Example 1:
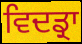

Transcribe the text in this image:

ਵਿਦਡ੍ਰਾ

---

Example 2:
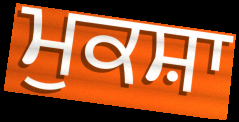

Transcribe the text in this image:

ਮੁਕਸ਼ਾ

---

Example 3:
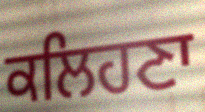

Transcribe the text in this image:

ਕਲਿਹਣਾ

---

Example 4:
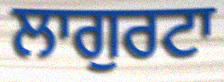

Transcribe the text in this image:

ਲਾਗੁਰਟਾ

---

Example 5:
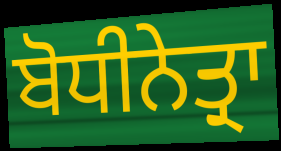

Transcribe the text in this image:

ਬੋਧੀਨੇਤ੍ਰਾ